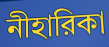
নীহারিকা